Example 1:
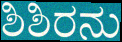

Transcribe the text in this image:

ಶಿಶಿರನು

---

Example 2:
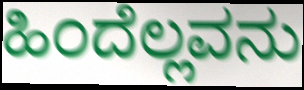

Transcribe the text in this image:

ಹಿಂದೆಲ್ಲವನು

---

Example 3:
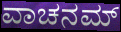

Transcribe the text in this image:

ವಾಚನಮ್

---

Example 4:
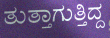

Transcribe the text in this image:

ತುತ್ತಾಗುತ್ತಿದ್ದ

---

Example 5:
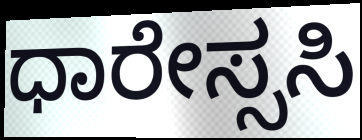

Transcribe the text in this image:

ಧಾರೇಸ್ಸಸಿ